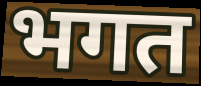
भगत